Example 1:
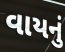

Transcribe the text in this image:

વાયનું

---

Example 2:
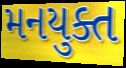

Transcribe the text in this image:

મનયુક્ત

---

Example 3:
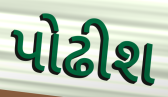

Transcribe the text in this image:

પોઢીશ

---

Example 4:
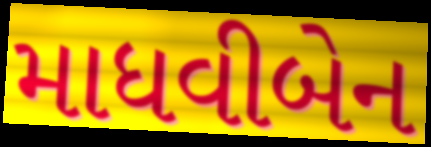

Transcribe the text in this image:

માધવીબેન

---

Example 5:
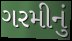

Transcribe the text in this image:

ગરમીનું